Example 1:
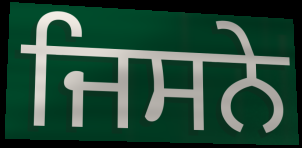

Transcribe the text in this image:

ਜਿਸਨੇ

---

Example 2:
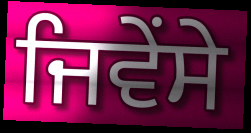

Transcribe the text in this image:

ਜਿਵੇਂਸੇ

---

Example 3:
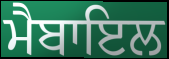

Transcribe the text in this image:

ਮੈਬਾਇਲ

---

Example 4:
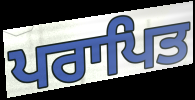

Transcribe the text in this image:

ਪਰਾਪਿਤ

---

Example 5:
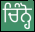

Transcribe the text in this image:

ਚਿੰਨ੍ਹੋ